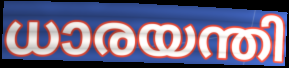
ധാരയന്തി